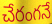
చేరంగనే